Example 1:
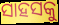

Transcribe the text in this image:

ସାହସକୁ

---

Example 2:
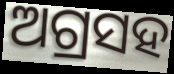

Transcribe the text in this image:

ଅଗ୍ରସହ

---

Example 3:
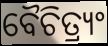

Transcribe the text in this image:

ବୈଚିତ୍ର୍ୟଂ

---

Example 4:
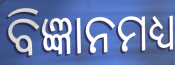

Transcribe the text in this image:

ବିଜ୍ଞାନମଧ୍ୟ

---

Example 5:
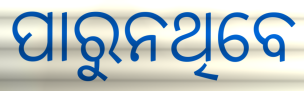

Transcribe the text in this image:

ପାରୁନଥିବେ